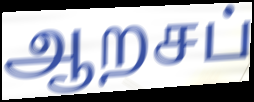
ஆறசப்